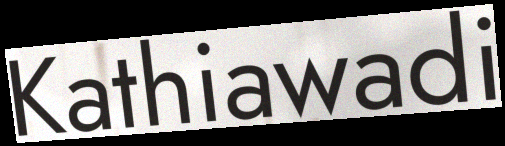
Kathiawadi